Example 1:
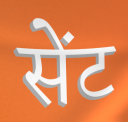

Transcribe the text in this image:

सेंट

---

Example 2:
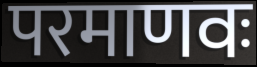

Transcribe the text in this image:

परमाणवः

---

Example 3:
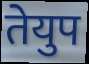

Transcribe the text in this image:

तेयुप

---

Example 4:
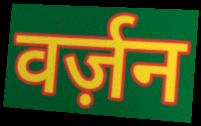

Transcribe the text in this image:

वर्ज़न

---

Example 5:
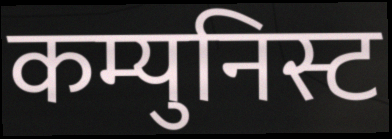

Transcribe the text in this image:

कम्युनिस्ट